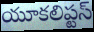
యూకలిప్టస్